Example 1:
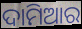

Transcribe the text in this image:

ଦାମିଆର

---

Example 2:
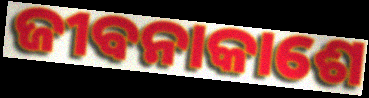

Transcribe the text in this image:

ଜୀବନାକାଶେ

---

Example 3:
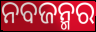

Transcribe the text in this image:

ନବଜନ୍ମର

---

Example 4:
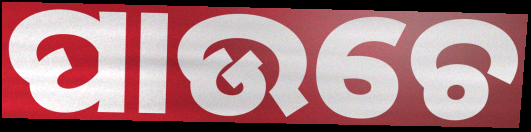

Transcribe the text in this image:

ପାଉଚେ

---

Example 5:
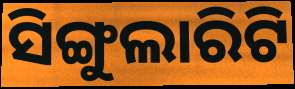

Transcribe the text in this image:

ସିଙ୍ଗୁଲାରିଟି